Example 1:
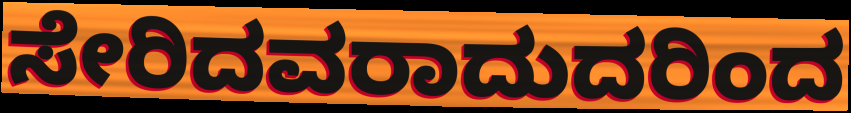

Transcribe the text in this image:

ಸೇರಿದವರಾದುದರಿಂದ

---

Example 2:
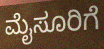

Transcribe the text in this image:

ಮೈಸೂರಿಗೆ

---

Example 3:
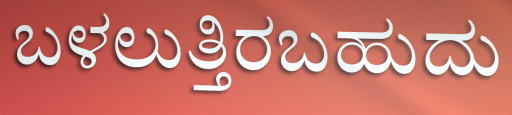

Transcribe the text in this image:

ಬಳಲುತ್ತಿರಬಹುದು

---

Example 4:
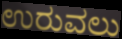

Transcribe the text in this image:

ಉರುವಲು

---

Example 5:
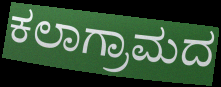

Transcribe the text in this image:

ಕಲಾಗ್ರಾಮದ